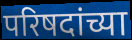
परिषदांच्या